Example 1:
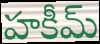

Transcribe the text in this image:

హకీమ్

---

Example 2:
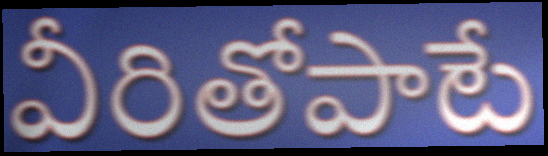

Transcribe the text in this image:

వీరితోపాటే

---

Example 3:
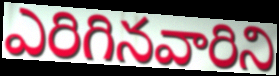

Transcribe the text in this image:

ఎరిగినవారిని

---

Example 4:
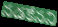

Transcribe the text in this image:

నడకేనని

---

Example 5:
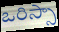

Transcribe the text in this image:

ఒరిస్సా